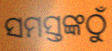
ସମସ୍ତଙ୍କଠୁଁ